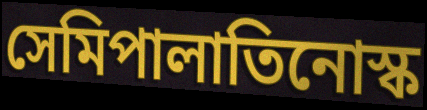
সেমিপালাতিনোস্ক